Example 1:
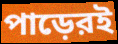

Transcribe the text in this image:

পাড়েরই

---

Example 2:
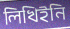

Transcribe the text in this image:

লিখিইনি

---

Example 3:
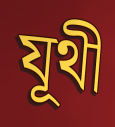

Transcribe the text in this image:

যূথী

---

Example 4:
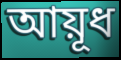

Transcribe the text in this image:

আয়ূধ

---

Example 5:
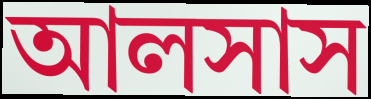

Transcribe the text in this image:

আলসাস